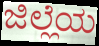
ಜಿಲ್ಲೆಯ